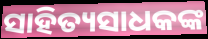
ସାହିତ୍ୟସାଧକଙ୍କ